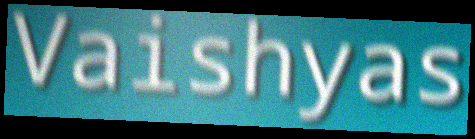
Vaishyas